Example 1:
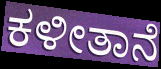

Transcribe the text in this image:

ಕಳೀತಾನೆ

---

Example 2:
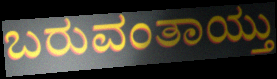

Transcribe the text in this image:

ಬರುವಂತಾಯ್ತು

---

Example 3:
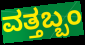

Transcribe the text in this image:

ವತ್ತಬ್ಬಂ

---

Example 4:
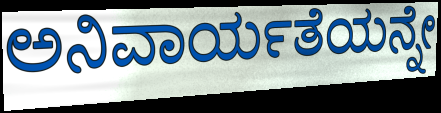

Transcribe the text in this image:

ಅನಿವಾರ್ಯತೆಯನ್ನೇ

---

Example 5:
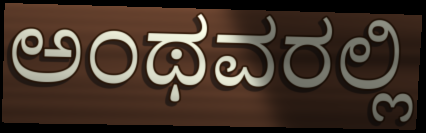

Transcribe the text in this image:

ಅಂಥವರಲ್ಲಿ